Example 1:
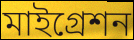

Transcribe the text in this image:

মাইগ্রেশন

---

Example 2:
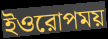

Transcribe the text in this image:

ইওরোপময়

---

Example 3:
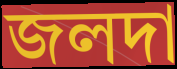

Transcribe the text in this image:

জলদা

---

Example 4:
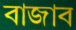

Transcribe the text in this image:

বাজাব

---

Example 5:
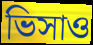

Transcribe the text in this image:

ভিসাও